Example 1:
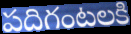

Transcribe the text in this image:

పదిగంటలకి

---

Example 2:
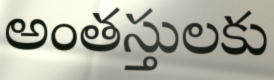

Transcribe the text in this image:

అంతస్తులకు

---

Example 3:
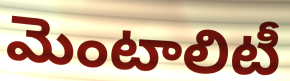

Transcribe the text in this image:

మెంటాలిటీ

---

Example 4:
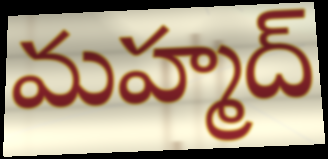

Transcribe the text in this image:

మహ్మద్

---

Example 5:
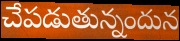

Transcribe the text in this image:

చేపడుతున్నందున